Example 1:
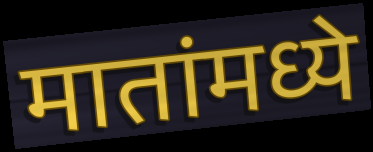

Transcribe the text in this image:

मातांमध्ये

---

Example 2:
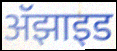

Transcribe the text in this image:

ॲझाइड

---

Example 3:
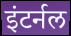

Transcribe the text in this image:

इंटर्नल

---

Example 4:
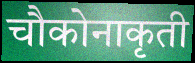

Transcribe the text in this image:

चौकोनाकृती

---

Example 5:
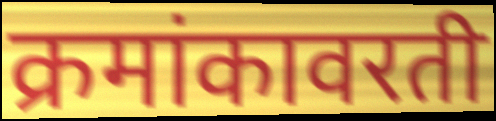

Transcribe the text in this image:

क्रमांकावरती